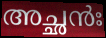
അച്ഛൻഃ